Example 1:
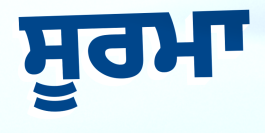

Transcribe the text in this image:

ਸੂਰਮਾ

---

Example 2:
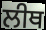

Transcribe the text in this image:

ਲੀਥ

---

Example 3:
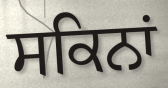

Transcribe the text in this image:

ਸਕਿਨਾਂ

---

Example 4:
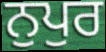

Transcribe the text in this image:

ਨੁਪੁਰ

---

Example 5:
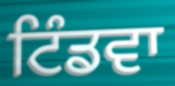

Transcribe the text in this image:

ਟਿੰਡਵਾ